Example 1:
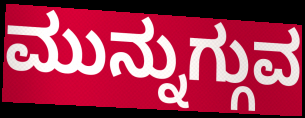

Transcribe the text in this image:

ಮುನ್ನುಗ್ಗುವ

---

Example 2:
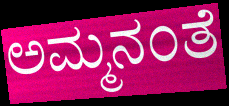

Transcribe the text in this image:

ಅಮ್ಮನಂತೆ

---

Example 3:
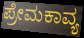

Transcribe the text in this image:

ಪ್ರೇಮಕಾವ್ಯ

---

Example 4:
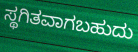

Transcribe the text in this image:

ಸ್ಥಗಿತವಾಗಬಹುದು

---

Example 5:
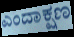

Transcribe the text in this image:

ಎಂದಾಕ್ಷಣ